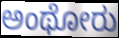
ಅಂಥೋರು